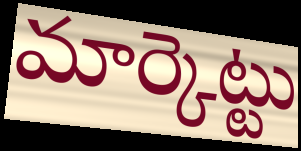
మార్కెట్టు